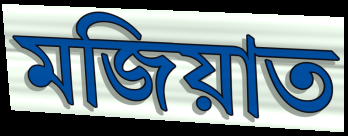
মজিয়াত